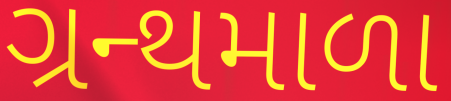
ગ્રન્થમાળા